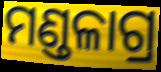
ମଣ୍ଡଳାଗ୍ର